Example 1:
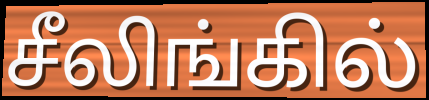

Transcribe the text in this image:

சீலிங்கில்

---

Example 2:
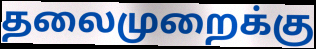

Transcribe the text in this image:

தலைமுறைக்கு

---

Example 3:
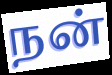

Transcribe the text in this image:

நன்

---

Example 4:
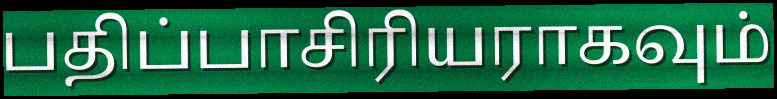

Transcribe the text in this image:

பதிப்பாசிரியராகவும்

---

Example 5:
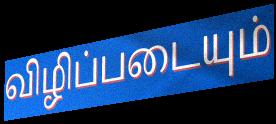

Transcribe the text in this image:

விழிப்படையும்